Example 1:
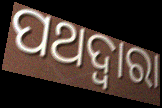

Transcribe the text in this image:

ପଥଦ୍ଵାରା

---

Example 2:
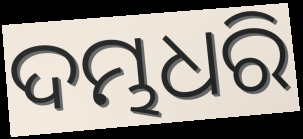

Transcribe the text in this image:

ଦମ୍ଭଧରି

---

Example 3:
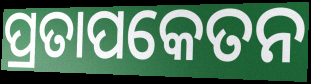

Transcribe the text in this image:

ପ୍ରତାପକେତନ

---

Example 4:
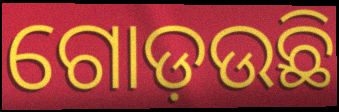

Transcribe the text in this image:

ଗୋଡ଼ଉଛି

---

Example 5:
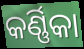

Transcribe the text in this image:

କର୍ଣ୍ଣିକା